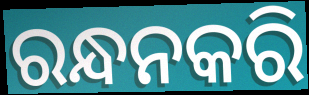
ରନ୍ଧନକରି